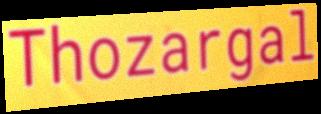
Thozargal